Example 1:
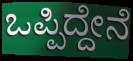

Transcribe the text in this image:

ಒಪ್ಪಿದ್ದೇನೆ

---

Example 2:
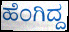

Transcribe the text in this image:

ಹೆಂಗಿದ್ದ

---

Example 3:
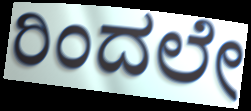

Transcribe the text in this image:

ರಿಂದಲೇ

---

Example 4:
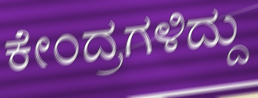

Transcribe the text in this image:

ಕೇಂದ್ರಗಳಿದ್ದು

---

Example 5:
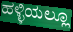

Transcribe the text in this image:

ಹಳ್ಳಿಯಲ್ಲೂ